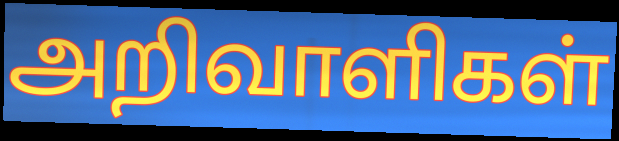
அறிவாளிகள்